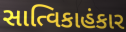
સાત્વિકાહંકાર